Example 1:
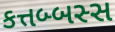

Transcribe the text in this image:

કત્તબ્બસ્સ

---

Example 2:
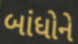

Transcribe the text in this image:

બાંધોને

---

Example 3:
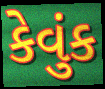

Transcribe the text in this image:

કેવુંક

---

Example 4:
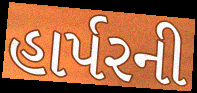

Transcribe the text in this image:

હાર્પરની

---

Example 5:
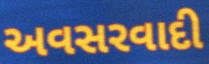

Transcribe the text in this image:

અવસરવાદી